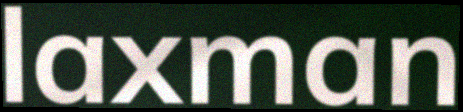
laxman